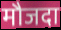
मौजदा